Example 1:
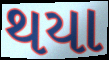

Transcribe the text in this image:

થયા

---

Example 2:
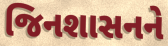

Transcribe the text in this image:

જિનશાસનને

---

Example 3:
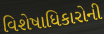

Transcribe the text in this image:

વિશેષાધિકારોની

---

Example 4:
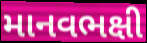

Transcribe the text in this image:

માનવભક્ષી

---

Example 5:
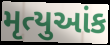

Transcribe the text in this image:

મૃત્યુઆંક